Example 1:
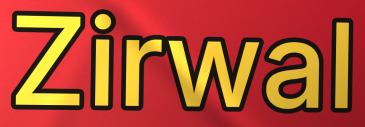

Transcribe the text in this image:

Zirwal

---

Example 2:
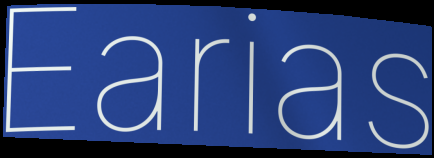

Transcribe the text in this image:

Earias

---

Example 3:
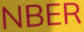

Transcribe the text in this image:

NBER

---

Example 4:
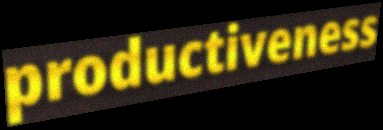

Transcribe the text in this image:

productiveness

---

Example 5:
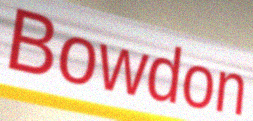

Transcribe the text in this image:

Bowdon